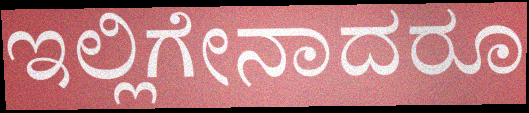
ಇಲ್ಲಿಗೇನಾದರೂ